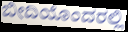
ಬೀದಿಯೊಂದರಲ್ಲಿ